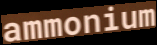
ammonium